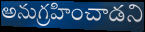
అనుగ్రహించాడని